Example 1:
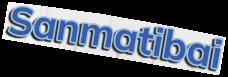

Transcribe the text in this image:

Sanmatibai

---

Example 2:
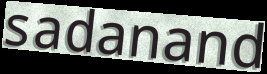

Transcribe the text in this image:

sadanand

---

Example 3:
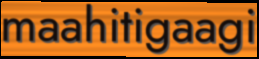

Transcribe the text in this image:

maahitigaagi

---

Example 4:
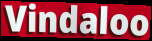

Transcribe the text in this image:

Vindaloo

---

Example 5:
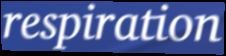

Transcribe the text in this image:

respiration